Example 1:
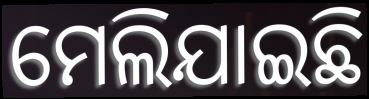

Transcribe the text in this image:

ମେଲିଯାଇଛି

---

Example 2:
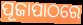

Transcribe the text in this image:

ପୂଜାପାଠରେ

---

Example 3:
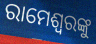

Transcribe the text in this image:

ରାମେଶ୍ୱରଙ୍କୁ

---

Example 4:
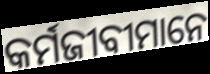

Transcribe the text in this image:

କର୍ମଜୀବୀମାନେ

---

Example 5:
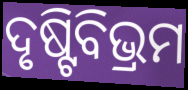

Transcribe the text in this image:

ଦୃଷ୍ଟିବିଭ୍ରମ